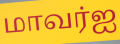
மாவர்ஐ